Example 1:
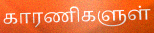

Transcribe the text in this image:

காரணிகளுள்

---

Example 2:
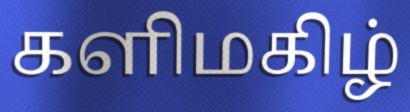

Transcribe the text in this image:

களிமகிழ்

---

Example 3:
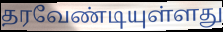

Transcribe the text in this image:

தரவேண்டியுள்ளது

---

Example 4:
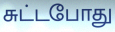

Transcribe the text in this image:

சுட்டபோது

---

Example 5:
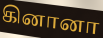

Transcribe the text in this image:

கினானா